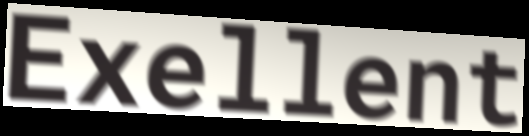
Exellent